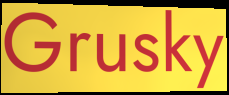
Grusky